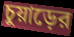
চুয়াড়ের